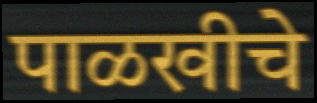
पाळखीचे